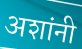
अशांनी